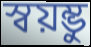
স্বয়ম্ভু